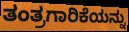
ತಂತ್ರಗಾರಿಕೆಯನ್ನು